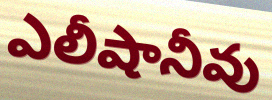
ఎలీషానీవు